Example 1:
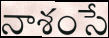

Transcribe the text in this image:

నాశంసే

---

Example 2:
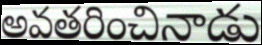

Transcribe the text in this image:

అవతరించినాడు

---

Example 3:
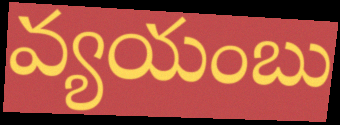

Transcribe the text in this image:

వ్యయంబు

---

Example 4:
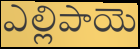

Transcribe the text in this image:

ఎల్లిపాయె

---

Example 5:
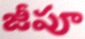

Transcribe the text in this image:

జీపూ